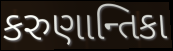
કરુણાન્તિકા